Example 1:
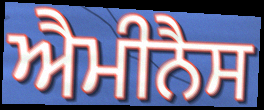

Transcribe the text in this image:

ਐਮੀਨੈਸ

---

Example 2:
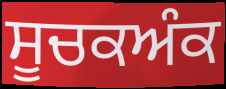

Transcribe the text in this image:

ਸੂਚਕਅੰਕ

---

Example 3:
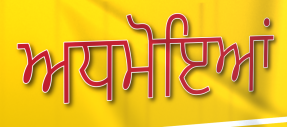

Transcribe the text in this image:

ਅਧਮੋਇਆਂ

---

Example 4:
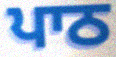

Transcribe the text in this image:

ਪਾਠ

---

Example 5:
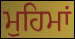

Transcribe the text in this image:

ਮੁਹਿਮਾਂ